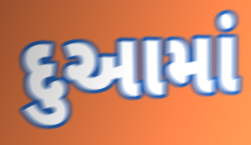
દુઆમાં